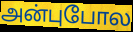
அன்புபோல